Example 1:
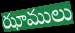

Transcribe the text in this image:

ఝాములు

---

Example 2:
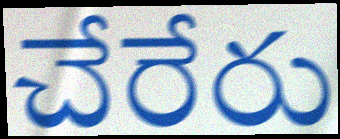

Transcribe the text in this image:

చేరేరు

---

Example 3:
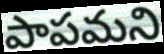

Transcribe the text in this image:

పాపమని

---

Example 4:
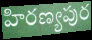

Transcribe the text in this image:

హిరణ్యపుర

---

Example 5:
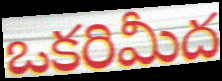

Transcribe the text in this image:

ఒకరిమీద